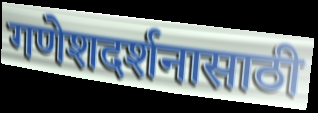
गणेशदर्शनासाठी